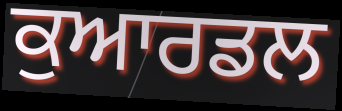
ਕੁਆਰਡਲ